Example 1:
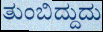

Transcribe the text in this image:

ತುಂಬಿದ್ದುದು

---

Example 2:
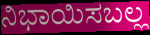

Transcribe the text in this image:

ನಿಭಾಯಿಸಬಲ್ಲ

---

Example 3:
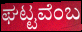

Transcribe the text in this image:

ಘಟ್ಟವೆಂಬ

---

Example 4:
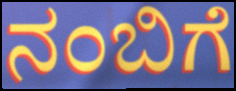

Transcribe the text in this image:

ನಂಬಿಗೆ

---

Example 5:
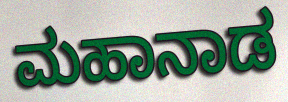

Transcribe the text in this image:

ಮಹಾನಾಡ